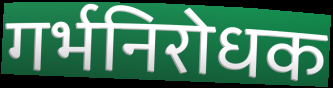
गर्भनिरोधक